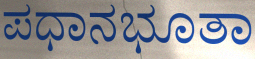
ಪಧಾನಭೂತಾ